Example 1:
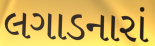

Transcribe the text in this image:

લગાડનારાં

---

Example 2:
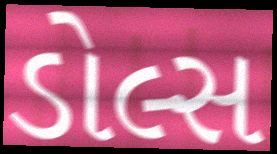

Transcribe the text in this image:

ડોલ્સ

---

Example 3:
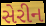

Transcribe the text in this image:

સેરીન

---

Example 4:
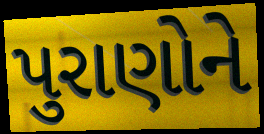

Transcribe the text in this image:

પુરાણોને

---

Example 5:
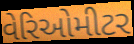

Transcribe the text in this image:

વેરિઓમીટર